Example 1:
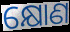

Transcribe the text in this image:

କ୍ଷୋଣ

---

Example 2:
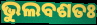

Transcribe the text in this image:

ଭୁଲବଶତଃ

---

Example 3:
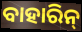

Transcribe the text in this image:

ବାହାରିନ୍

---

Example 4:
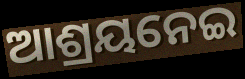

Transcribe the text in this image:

ଆଶ୍ରୟନେଇ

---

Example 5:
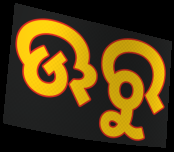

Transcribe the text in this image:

ଊରୁ